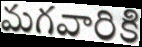
మగవారికి